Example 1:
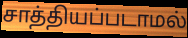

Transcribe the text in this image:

சாத்தியப்படாமல்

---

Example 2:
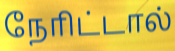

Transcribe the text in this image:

நேரிட்டால்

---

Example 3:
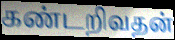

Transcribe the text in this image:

கண்டறிவதன்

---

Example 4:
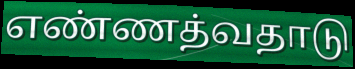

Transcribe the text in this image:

எண்ணத்வதாடு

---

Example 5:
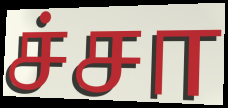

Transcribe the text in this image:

ச்சா